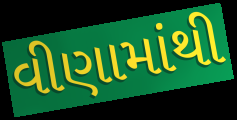
વીણામાંથી